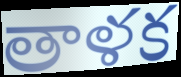
తాళక